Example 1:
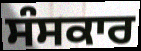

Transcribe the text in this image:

ਸੰਸਕਾਰ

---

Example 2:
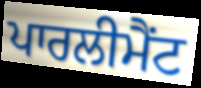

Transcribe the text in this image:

ਪਾਰਲੀਮੈਂਟ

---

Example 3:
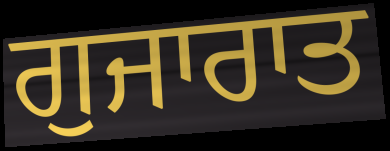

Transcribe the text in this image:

ਗੁਜਾਰਾਤ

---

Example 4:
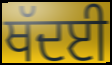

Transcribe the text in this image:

ਥੱਦਈ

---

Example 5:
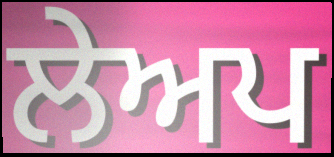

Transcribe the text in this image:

ਲੇਅਪ